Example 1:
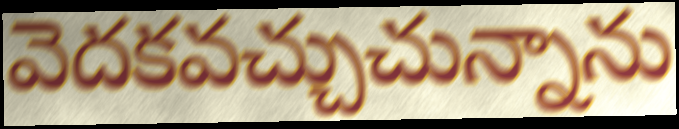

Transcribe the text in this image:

వెదకవచ్చుచున్నాను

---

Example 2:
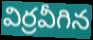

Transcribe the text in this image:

విర్రవీగిన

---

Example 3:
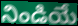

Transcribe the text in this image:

నిండియే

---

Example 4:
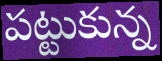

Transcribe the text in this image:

పట్టుకున్న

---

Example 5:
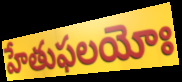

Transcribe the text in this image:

హేతుఫలయోః